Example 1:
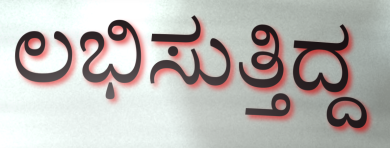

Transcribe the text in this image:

ಲಭಿಸುತ್ತಿದ್ದ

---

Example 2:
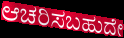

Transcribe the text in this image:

ಆಚರಿಸಬಹುದೇ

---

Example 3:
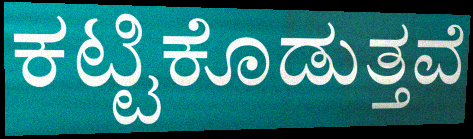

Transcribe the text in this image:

ಕಟ್ಟಿಕೊಡುತ್ತವೆ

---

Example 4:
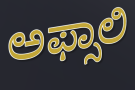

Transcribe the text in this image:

ಅಫ್ಸಾಲಿ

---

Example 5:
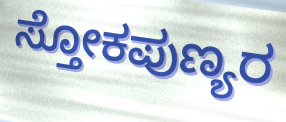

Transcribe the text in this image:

ಸ್ತೋಕಪುಣ್ಯರ